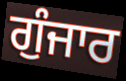
ਗੁੰਜਾਰ